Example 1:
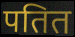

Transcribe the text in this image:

पतित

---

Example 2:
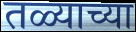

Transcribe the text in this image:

तळ्याच्या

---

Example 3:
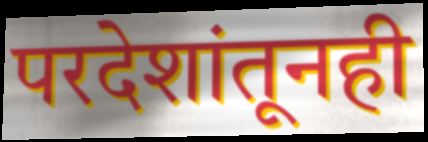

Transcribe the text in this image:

परदेशांतूनही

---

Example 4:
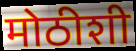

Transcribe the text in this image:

मोठीशी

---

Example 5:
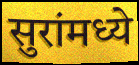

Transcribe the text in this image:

सुरांमध्ये